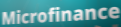
Microfinance